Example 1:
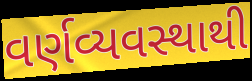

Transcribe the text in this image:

વર્ણવ્યવસ્થાથી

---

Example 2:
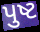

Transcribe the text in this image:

પુષ્ટ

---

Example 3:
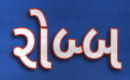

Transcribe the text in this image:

રોબ્બ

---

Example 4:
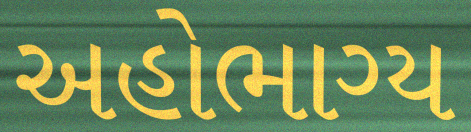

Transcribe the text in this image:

અહોભાગ્ય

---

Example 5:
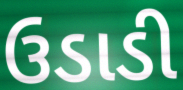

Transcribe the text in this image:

ઉડાડી